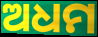
ଅଧମ